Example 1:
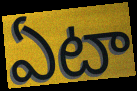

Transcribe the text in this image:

ఏటా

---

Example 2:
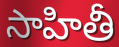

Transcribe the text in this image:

సాహితీ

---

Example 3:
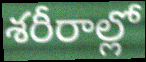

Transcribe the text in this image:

శరీరాల్లో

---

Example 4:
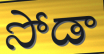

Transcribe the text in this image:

సోడా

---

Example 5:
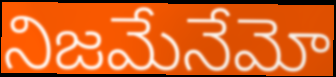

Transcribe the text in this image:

నిజమేనేమో